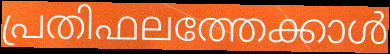
പ്രതിഫലത്തേക്കാൾ